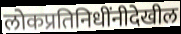
लोकप्रतिनिधींनीदेखील